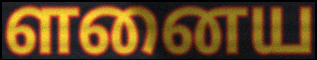
ளனைய